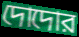
দোদোর